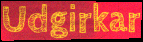
Udgirkar